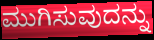
ಮುಗಿಸುವುದನ್ನು